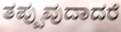
ತಪ್ಪುವುದಾದರೆ